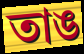
তাঙ